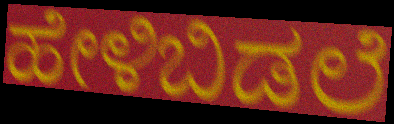
ಹೇಳಿಬಿಡಲೆ